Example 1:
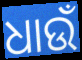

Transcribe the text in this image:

ଧାଉଁ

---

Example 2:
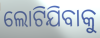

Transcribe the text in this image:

ଲୋଟିଯିବାକୁ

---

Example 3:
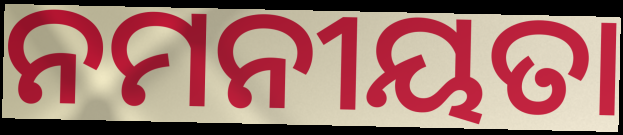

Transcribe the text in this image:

ନମନୀୟତା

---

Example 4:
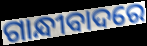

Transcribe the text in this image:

ଗାନ୍ଧୀବାଦରେ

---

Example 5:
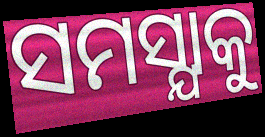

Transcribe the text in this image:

ସମସ୍ଯାକୁ